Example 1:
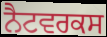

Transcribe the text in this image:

ਨੈਟਵਰਕਸ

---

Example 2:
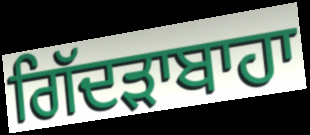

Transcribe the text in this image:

ਗਿੱਦੜਾਬਾਹਾ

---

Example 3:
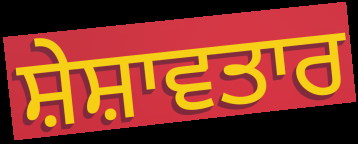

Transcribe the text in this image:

ਸ਼ੇਸ਼ਾਵਤਾਰ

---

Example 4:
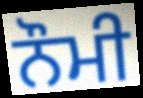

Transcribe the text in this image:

ਨੌਮੀ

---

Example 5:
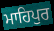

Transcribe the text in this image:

ਮਾਹਿਪੁਰ